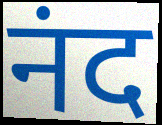
नंद